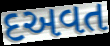
દઅવત